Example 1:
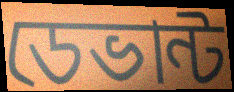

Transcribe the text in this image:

ডেভান্ট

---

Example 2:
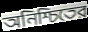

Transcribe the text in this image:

অনিশ্চিতের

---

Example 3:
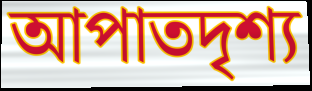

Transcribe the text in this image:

আপাতদৃশ্য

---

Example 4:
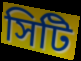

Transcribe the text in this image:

সিটি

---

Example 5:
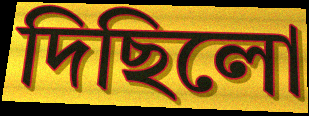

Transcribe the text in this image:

দিছিলো